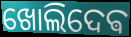
ଖୋଲିଦେଵ